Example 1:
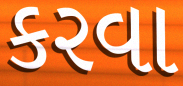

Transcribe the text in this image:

કરવા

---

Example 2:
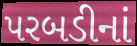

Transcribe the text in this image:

પરબડીનાં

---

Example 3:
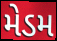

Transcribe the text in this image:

મેડમ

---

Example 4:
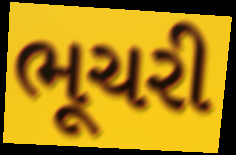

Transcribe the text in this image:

ભૂચરી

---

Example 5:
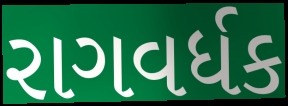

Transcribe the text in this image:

રાગવર્ધક